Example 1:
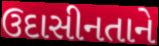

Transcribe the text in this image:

ઉદાસીનતાને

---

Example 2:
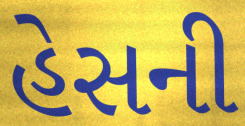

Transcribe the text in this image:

હેસની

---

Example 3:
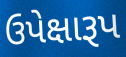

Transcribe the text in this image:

ઉપેક્ષારૂપ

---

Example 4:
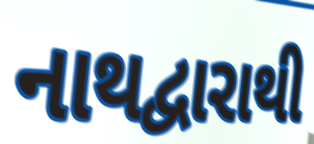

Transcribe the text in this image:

નાથદ્વારાથી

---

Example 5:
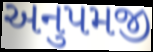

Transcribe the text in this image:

અનુપમજી